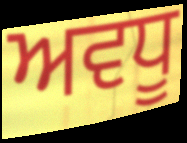
ਅਵਧੂ